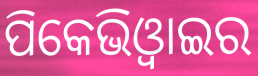
ପିକେଭିଓ୍ବାଇର